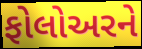
ફોલોઅરને